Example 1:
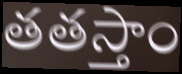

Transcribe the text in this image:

తతస్తాం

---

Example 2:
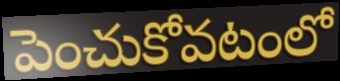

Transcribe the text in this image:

పెంచుకోవటంలో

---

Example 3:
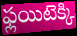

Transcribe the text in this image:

ఫ్లయిటెక్కి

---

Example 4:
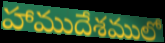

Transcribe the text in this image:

హాముదేశములో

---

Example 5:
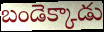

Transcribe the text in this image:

బండెక్కాడు